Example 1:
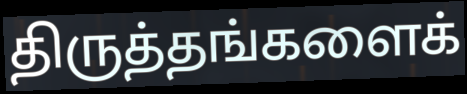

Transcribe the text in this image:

திருத்தங்களைக்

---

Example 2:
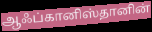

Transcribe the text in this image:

ஆஃப்கானிஸ்தானின்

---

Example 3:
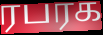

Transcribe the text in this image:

ரபரக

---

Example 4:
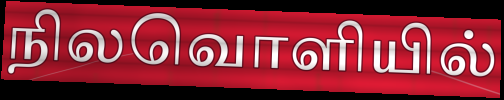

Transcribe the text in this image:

நிலவொளியில்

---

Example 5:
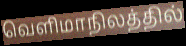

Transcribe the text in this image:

வெளிமாநிலத்தில்